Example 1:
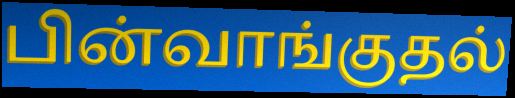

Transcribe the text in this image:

பின்வாங்குதல்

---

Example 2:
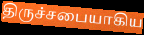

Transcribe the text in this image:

திருச்சபையாகிய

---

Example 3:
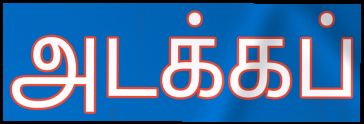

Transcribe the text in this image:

அடக்கப்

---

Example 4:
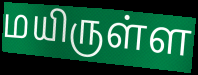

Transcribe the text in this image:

மயிருள்ள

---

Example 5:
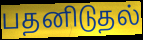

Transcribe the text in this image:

பதனிடுதல்